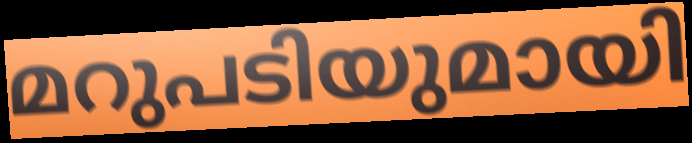
മറുപടിയുമായി